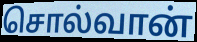
சொல்வான்